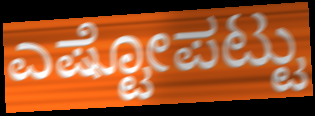
ಎಷ್ಟೋಪಟ್ಟು